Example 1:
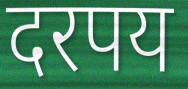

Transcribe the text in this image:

दरपय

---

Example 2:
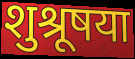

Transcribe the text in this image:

शुश्रूषया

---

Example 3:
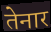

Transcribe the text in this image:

तेनार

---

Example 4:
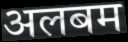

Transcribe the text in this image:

अलबम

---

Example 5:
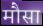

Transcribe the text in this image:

मौसा